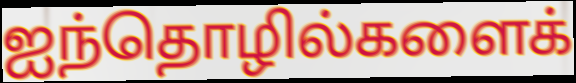
ஐந்தொழில்களைக்